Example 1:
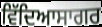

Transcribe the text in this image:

ਵਿੱਦਿਆਸਾਗਰ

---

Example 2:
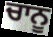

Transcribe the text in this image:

ਚਾਨੂ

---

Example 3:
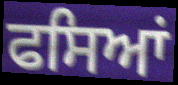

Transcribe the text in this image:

ਫਸਿਆਂ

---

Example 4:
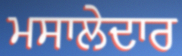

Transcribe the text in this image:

ਮਸਾਲੇਦਾਰ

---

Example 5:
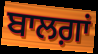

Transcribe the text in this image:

ਬਾਲਗ਼ਾਂ